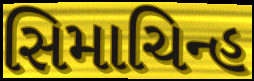
સિમાચિન્હ